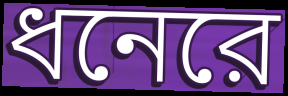
ধনেরে